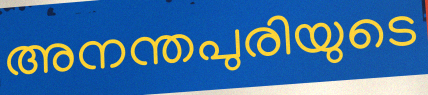
അനന്തപുരിയുടെ